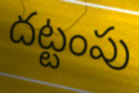
దట్టంపు